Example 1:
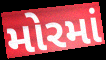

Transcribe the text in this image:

મોરમાં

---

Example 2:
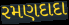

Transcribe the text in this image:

રમણદાદા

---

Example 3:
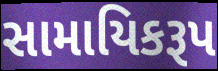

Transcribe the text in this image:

સામાયિકરૂપ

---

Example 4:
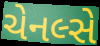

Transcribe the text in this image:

ચેનલ્સે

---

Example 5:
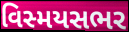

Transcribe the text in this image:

વિસ્મયસભર